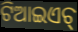
ଟିଆଇଏଚ୍